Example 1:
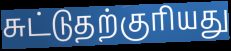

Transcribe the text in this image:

சுட்டுதற்குரியது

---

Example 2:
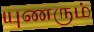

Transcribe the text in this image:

யுணரும்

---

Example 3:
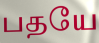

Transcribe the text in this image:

பதயே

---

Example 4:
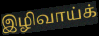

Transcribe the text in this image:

இழிவாய்க்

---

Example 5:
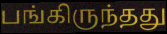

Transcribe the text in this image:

பங்கிருந்தது